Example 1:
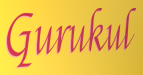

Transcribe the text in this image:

Gurukul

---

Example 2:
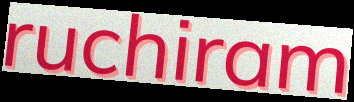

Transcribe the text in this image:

ruchiram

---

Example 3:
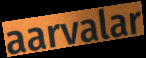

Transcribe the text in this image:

aarvalar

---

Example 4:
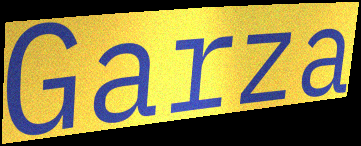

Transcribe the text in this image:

Garza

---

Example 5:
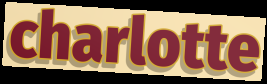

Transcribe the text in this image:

charlotte